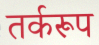
तर्करूप